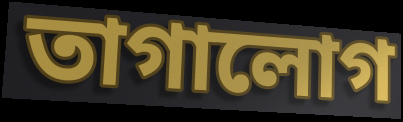
তাগালোগ